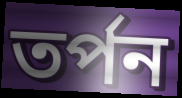
তর্পন